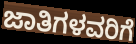
ಜಾತಿಗಳವರಿಗೆ